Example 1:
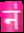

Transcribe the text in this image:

न॑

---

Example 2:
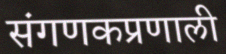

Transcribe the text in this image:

संगणकप्रणाली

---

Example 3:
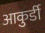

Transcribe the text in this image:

आकुर्डी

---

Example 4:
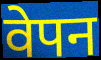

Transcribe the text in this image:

वेपन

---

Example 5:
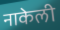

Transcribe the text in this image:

नाकेली